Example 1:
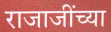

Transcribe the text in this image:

राजाजींच्या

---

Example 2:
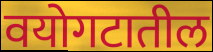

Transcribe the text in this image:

वयोगटातील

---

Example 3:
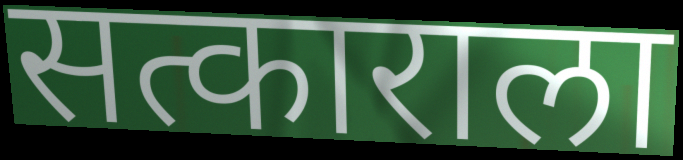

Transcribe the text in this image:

सत्काराला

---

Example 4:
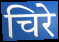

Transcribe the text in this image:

चिरे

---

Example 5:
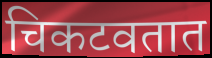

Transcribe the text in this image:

चिकटवतात